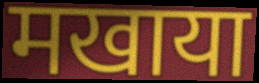
मखाया